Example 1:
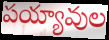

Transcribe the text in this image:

పయ్యావుల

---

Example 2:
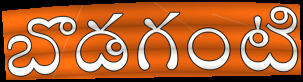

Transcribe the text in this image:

బొడగంటి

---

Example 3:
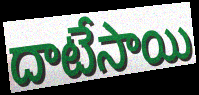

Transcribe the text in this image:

దాటేసాయి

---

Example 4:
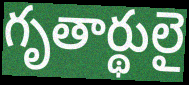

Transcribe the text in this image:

గృతార్థులై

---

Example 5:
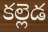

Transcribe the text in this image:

కల్లెడ